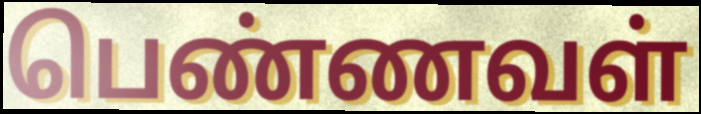
பெண்ணவள்